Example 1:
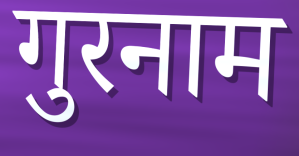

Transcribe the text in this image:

गुरनाम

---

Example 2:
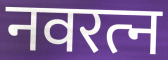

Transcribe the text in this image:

नवरत्‍न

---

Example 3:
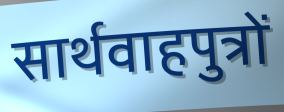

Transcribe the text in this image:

सार्थवाहपुत्रों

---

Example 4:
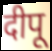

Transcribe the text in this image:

दीपू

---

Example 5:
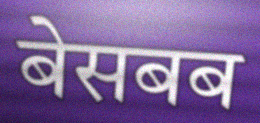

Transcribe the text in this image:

बेसबब